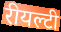
रीयल्टी